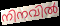
നിനവിൽ